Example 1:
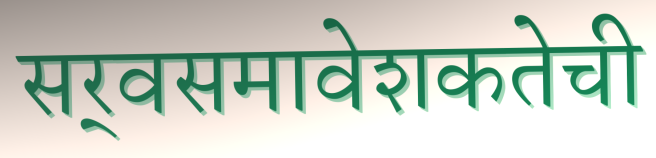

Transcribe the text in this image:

सर्वसमावेशकतेची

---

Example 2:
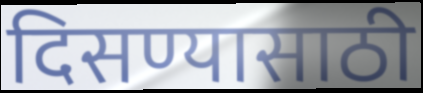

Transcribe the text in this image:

दिसण्यासाठी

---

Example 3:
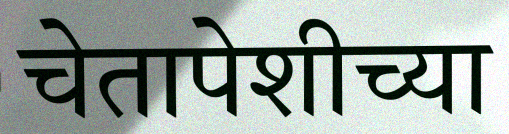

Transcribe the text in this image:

चेतापेशीच्या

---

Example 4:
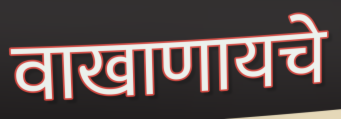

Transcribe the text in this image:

वाखाणायचे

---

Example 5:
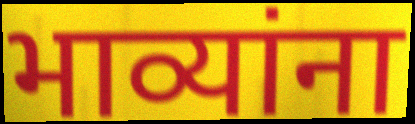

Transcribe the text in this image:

भाव्यांना